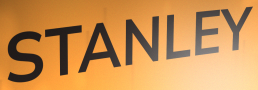
STANLEY